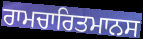
ਰਾਮਚਾਰਿਤਮਾਨਸ